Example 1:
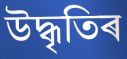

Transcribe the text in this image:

উদ্ধৃতিৰ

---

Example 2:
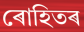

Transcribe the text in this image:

ৰোহিতৰ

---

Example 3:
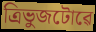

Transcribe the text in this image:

ত্ৰিভুজটোৱে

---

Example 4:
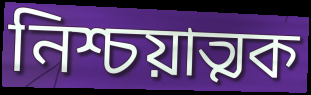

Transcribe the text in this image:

নিশ্চয়াত্মক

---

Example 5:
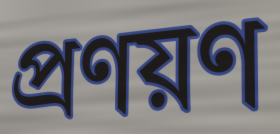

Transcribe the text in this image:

প্ৰণয়ণ